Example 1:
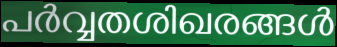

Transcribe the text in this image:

പർവ്വതശിഖരങ്ങൾ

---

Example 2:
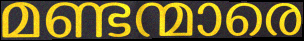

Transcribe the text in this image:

മണ്ടന്മാരെ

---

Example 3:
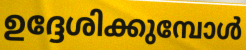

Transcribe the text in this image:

ഉദ്ദേശിക്കുമ്പോൾ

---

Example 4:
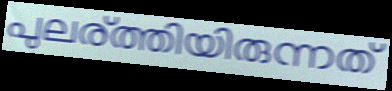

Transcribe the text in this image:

പുലര്ത്തിയിരുന്നത്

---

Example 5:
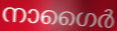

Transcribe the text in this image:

നാഗൈർ